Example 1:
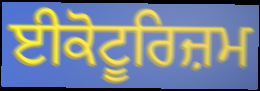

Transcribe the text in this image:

ਈਕੋਟੂਰਿਜ਼ਮ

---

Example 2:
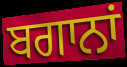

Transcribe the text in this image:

ਬਗਾਨਾਂ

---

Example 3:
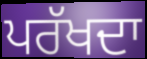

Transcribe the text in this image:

ਪਰੱਖਦਾ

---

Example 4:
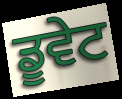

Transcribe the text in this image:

ਡੂਵੇਟ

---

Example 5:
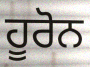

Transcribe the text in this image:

ਹੂਰੋਨ